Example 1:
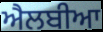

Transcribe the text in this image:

ਐਲਬੀਆ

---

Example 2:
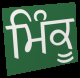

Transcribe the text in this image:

ਮਿੰਕੂ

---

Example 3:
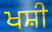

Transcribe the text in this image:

ਖਸ਼ੀ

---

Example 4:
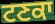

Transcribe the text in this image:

ਟਣਕਾ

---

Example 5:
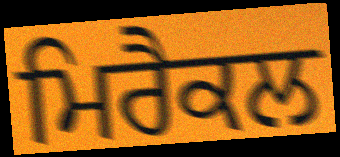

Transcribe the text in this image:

ਮਿਰੈਕਲ